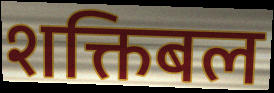
शक्तिबल